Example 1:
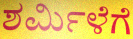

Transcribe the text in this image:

ಶರ್ಮಿಳೆಗೆ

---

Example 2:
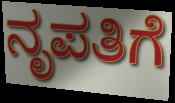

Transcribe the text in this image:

ನೃಪತಿಗೆ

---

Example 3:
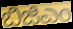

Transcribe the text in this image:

ಬಿಜಿಎಂ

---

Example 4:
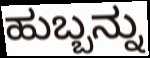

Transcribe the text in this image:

ಹುಬ್ಬನ್ನು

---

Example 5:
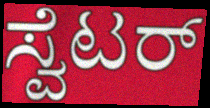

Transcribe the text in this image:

ಸ್ವೆಟರ್